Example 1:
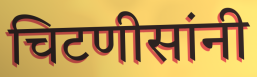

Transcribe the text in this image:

चिटणीसांनी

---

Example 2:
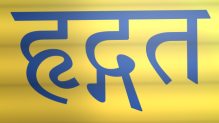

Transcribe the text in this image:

हृद्गत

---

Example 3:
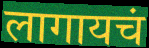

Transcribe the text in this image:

लागायचं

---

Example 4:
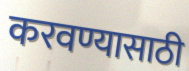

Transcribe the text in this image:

करवण्यासाठी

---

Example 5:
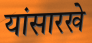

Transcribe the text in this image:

यांसारखे